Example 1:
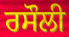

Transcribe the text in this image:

ਰਸੌਲੀ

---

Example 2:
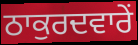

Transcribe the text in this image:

ਠਾਕੁਰਦਵਾਰੇਂ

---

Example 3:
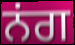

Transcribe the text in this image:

ਨਂਗ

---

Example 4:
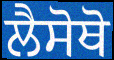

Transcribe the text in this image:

ਲੈਸੋਥੋ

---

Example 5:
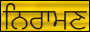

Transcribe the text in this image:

ਨਿਰਾਮਣ